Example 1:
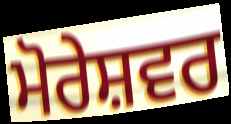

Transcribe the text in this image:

ਮੋਰੇਸ਼ਵਰ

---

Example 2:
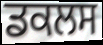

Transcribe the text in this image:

ਡਕਲਸ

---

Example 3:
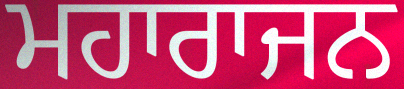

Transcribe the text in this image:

ਮਹਾਰਾਜਨ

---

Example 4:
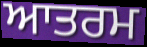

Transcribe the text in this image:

ਆਤਰਮ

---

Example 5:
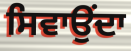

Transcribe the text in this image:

ਸਿਵਾਉਂਦਾ